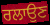
ਰਲਾਉਣ